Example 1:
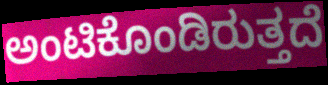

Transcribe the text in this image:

ಅಂಟಿಕೊಂಡಿರುತ್ತದೆ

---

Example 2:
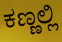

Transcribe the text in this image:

ಕಣ್ಣಲ್ಲಿ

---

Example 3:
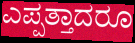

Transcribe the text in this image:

ಎಪ್ಪತ್ತಾದರೂ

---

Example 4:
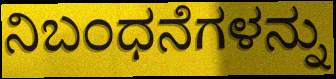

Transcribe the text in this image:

ನಿಬಂಧನೆಗಳನ್ನು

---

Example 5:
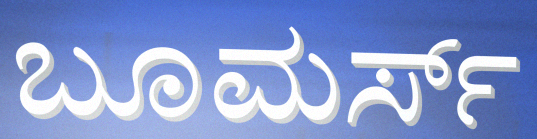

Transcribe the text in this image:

ಬೂಮರ್ಸ್